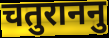
चतुराननु